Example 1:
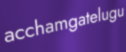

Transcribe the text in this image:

acchamgatelugu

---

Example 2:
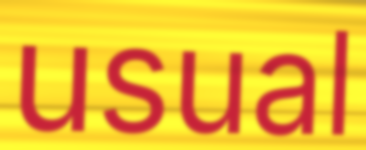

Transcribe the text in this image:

usual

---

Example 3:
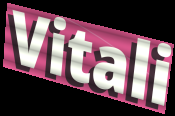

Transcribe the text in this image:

Vitali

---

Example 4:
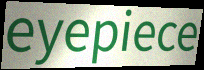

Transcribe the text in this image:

eyepiece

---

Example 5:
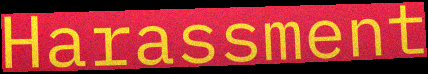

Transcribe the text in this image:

Harassment